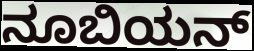
ನೂಬಿಯನ್